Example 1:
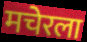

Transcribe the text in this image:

मचेरला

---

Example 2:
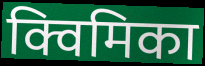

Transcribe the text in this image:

क्विमिका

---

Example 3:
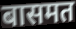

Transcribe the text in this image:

बासमत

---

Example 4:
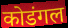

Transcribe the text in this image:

कोडंगल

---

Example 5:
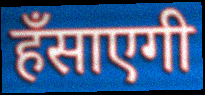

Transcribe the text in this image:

हँसाएगी